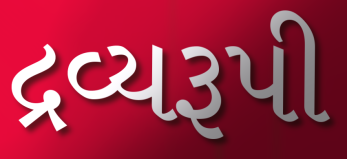
દ્રવ્યરૂપી